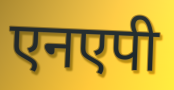
एनएपी